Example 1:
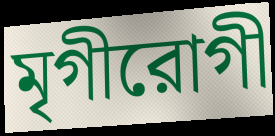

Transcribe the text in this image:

মৃগীরোগী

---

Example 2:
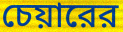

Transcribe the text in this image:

চেয়ারের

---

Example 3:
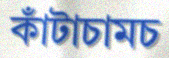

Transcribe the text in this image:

কাঁটাচামচ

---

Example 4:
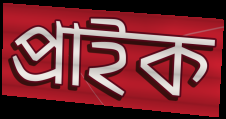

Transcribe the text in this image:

প্রাইক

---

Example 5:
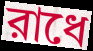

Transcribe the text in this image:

রাধে